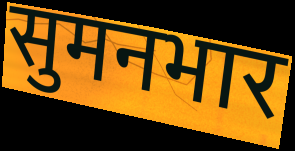
सुमनभार